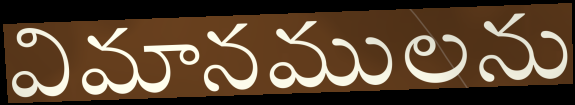
విమానములను